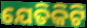
ଯେତିକିଟି